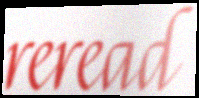
reread